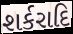
શર્કરાદિ